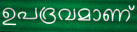
ഉപദ്രവമാണ്